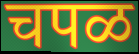
चपळ